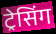
ट्रेसिंग